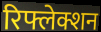
रिफ्लेक्शन